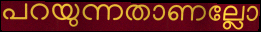
പറയുന്നതാണല്ലോ